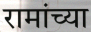
रामांच्या